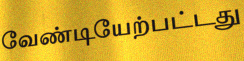
வேண்டியேற்பட்டது